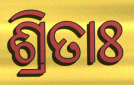
ଶ୍ରିତାଃ